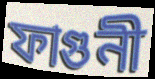
ফাগুনী